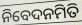
ନିବେଦନମିତି